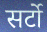
सर्टो